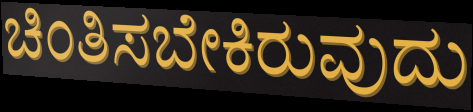
ಚಿಂತಿಸಬೇಕಿರುವುದು